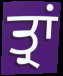
ਤ੍ਰਾਂ